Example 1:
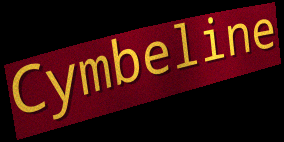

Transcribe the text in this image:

Cymbeline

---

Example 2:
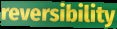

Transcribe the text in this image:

reversibility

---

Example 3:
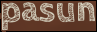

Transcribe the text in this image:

pasun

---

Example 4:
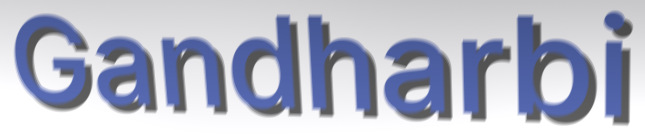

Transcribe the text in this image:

Gandharbi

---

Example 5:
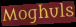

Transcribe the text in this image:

Moghuls